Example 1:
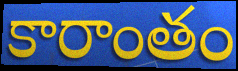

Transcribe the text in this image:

కారాంతం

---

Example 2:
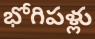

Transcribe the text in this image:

భోగిపళ్లు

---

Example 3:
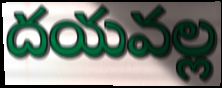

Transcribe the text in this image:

దయవల్ల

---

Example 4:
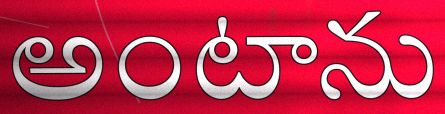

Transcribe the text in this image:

అంటాను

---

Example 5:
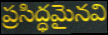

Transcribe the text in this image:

ప్రసిద్ధమైనవి